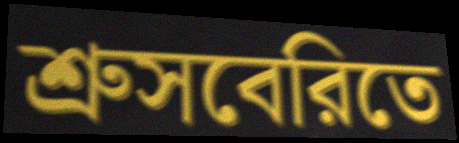
শ্রুসবেরিতে